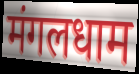
मंगलधाम